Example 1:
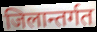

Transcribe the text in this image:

जिलान्तर्गत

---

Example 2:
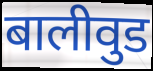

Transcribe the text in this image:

बालीवुड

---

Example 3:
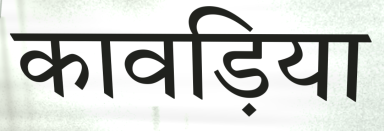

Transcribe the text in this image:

कावड़िया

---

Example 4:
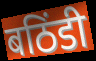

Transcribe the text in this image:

बठिंडी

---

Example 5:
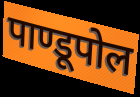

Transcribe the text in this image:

पाण्डूपोल